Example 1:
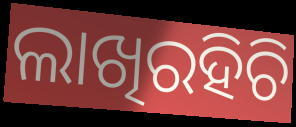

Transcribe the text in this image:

ଲାଖିରହିଚି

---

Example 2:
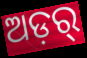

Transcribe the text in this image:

ଅଡ଼ର୍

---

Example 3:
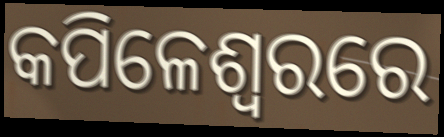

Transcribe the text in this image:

କପିଳେଶ୍ୱରରେ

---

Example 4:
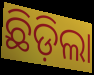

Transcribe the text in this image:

ଛିଡ଼ିଲା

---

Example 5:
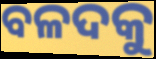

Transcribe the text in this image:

ବଳଦକୁ